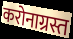
करोनाग्रस्त